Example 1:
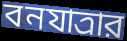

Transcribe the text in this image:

বনযাত্রার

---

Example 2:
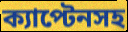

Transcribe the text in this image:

ক্যাপ্টেনসহ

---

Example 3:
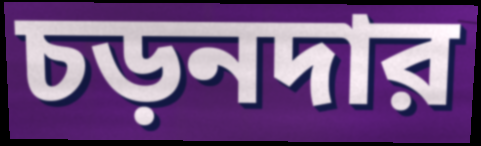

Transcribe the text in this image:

চড়নদার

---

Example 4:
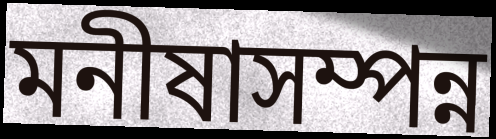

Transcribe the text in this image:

মনীষাসম্পন্ন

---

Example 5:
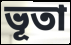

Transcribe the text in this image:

ভূতা